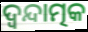
ଦ୍ଵନ୍ଦାତ୍ମକ